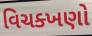
વિચક્ખણો